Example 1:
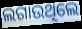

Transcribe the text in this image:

ଲଗାଉଥିଲେ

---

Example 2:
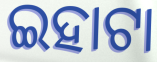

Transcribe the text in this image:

ଇହାଟା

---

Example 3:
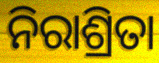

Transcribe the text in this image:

ନିରାଶ୍ରିତା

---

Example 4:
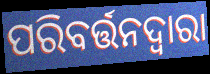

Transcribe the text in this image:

ପରିବର୍ତ୍ତନଦ୍ୱାରା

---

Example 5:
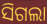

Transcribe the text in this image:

ସିଗଲା